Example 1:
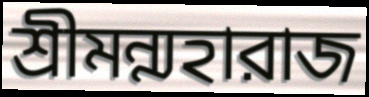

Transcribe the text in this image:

শ্রীমন্মহারাজ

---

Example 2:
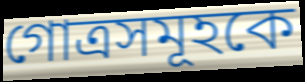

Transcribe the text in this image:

গোত্রসমূহকে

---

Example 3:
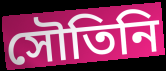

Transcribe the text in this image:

সৌতিনি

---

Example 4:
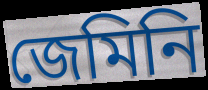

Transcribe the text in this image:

জেমিনি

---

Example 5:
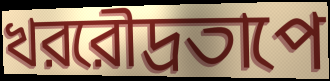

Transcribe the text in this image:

খররৌদ্রতাপে